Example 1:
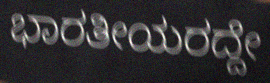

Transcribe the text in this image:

ಭಾರತೀಯರದ್ದೇ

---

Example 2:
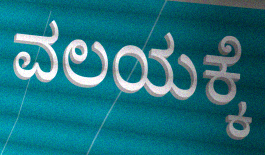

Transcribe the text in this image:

ವಲಯಕ್ಕೆ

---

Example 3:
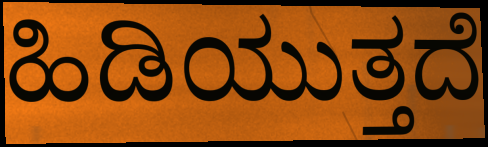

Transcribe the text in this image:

ಹಿಡಿಯುತ್ತದೆ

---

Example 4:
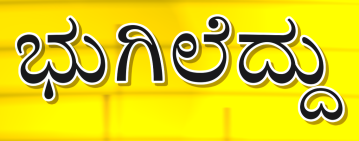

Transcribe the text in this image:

ಭುಗಿಲೆದ್ದು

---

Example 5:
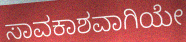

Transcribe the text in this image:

ಸಾವಕಾಶವಾಗಿಯೇ